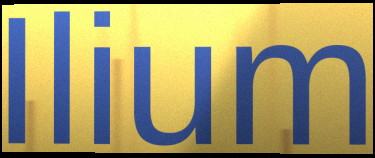
Ilium